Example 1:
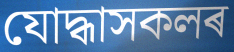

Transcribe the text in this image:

যোদ্ধাসকলৰ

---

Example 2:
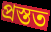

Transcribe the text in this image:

প্ৰস্তত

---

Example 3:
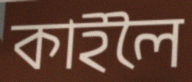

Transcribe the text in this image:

কাইলৈ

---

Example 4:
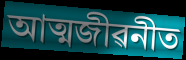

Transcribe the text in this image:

আত্মজীৱনীত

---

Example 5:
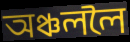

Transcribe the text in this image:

অঞ্চললৈ